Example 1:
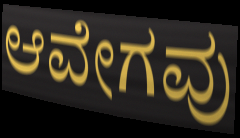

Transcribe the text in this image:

ಆವೇಗವು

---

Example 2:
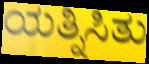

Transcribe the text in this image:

ಯತ್ನಿಸಿತು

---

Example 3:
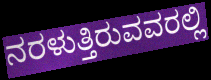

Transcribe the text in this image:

ನರಳುತ್ತಿರುವವರಲ್ಲಿ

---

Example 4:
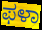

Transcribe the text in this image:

ಫಳಾ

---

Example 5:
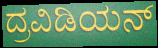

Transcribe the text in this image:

ದ್ರವಿಡಿಯನ್